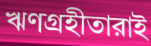
ঋণগ্রহীতারাই